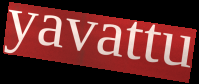
yavattu